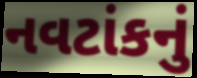
નવટાંકનું